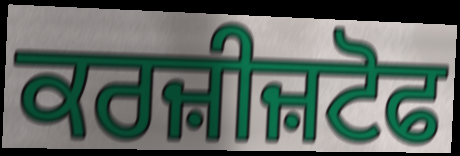
ਕਰਜ਼ੀਜ਼ਟੋਫ